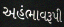
અહંભાવરૂપી